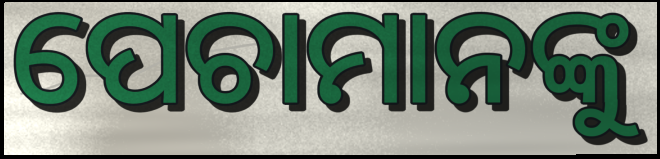
ପେଚାମାନଙ୍କୁ